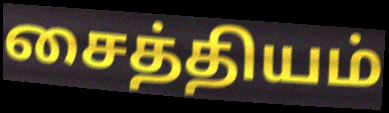
சைத்தியம்